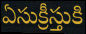
ఏసుక్రీస్తుకి